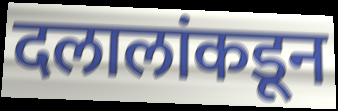
दलालांकडून